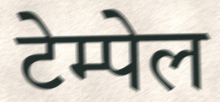
टेम्पेल